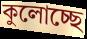
কুলোচ্ছে